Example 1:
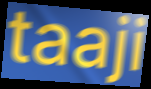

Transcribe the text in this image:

taaji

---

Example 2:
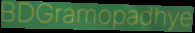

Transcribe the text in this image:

BDGramopadhye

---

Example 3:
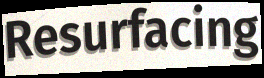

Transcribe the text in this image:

Resurfacing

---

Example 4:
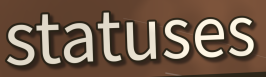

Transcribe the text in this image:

statuses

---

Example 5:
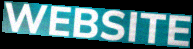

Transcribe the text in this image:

WEBSITE